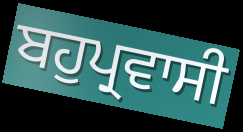
ਬਹੁਪ੍ਰਵਾਸੀ